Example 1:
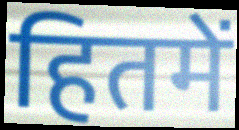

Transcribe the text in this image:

हितमें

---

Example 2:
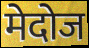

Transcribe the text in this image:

मेदोज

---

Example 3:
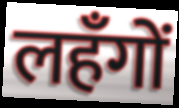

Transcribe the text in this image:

लहँगों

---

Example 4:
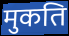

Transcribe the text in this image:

मुकति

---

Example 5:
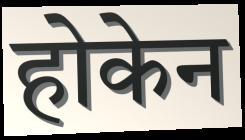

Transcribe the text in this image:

होकेन